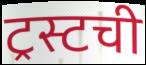
ट्रस्टची